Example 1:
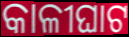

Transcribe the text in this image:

କାଳୀଘାଟ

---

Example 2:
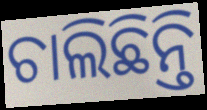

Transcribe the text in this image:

ଚାଲିଛିନ୍ତି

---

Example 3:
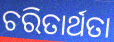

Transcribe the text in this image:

ଚରିତାର୍ଥତା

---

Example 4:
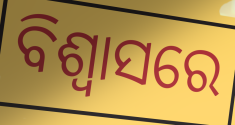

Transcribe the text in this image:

ବିଶ୍ୱାସରେ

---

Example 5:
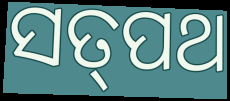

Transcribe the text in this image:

ସତ୍‌ପଥ